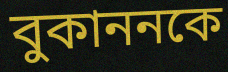
বুকাননকে